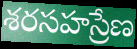
శరసహస్రేణ